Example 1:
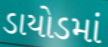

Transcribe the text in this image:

ડાયોડમાં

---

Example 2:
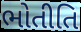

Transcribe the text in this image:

ભોતીતિ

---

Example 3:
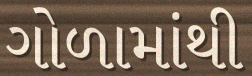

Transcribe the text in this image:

ગોળામાંથી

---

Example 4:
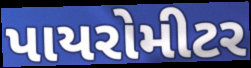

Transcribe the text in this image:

પાયરોમીટર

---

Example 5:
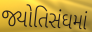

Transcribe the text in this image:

જ્યોતિસંઘમાં